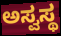
ಅಸ್ವಸ್ಥ